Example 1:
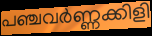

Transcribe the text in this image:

പഞ്ചവർണ്ണക്കിളി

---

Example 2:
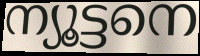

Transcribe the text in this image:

ന്യൂട്ടനെ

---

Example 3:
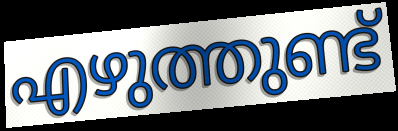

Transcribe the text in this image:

എഴുത്തുണ്ട്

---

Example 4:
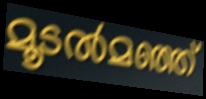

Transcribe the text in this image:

മൂടൽമഞ്ഞ്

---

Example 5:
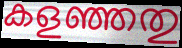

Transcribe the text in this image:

കളഞ്ഞതു